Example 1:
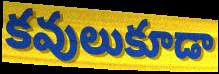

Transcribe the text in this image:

కవులుకూడా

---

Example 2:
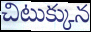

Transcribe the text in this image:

చిటుక్కున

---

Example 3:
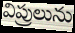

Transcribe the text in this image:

విప్రులును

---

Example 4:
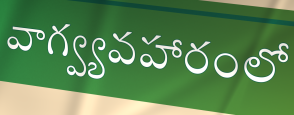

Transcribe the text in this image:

వాగ్వ్యవహారంలో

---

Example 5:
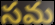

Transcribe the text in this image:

సమ